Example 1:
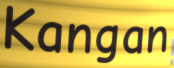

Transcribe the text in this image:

Kangan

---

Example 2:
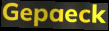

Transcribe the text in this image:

Gepaeck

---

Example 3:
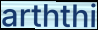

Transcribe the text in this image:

arththi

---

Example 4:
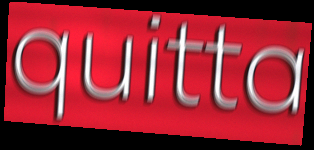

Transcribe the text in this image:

quitta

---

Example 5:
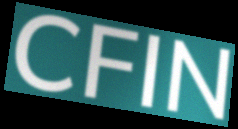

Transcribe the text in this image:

CFIN